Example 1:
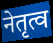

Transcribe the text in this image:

नेतृत्‍व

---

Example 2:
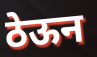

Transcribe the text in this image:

ठेऊन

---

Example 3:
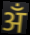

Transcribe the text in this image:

अँ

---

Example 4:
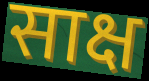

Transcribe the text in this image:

साक्ष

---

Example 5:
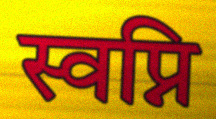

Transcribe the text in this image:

स्वप्नि